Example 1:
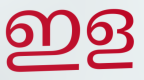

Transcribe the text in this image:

ഇള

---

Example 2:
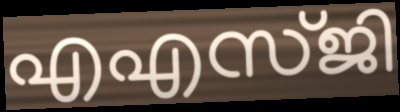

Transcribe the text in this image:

എഎസ്ജി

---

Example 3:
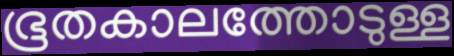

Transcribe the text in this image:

ഭൂതകാലത്തോടുള്ള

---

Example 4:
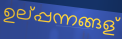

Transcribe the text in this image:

ഉല്പ്പന്നങ്ങള്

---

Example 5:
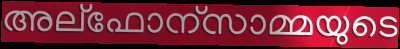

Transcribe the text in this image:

അല്ഫോന്സാമ്മയുടെ